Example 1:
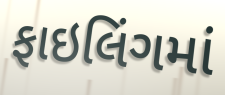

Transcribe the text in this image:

ફાઇલિંગમાં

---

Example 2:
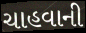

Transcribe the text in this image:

ચાહવાની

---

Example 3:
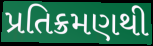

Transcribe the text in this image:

પ્રતિક્રમણથી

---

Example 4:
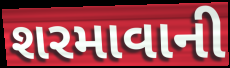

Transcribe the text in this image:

શરમાવાની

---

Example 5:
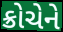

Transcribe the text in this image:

ક્રોચેને